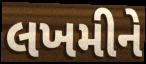
લખમીને